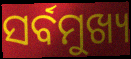
ସର୍ବମୁଖ୍ୟ